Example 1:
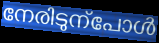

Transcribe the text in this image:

നേരിടുന്പോൾ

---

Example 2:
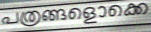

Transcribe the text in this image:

പത്രങ്ങളൊക്കെ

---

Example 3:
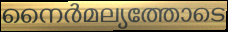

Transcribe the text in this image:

നൈർമല്യത്തോടെ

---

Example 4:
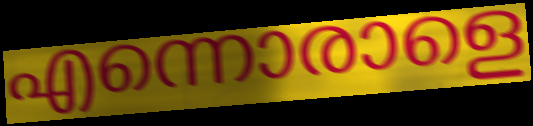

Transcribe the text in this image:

എന്നൊരാളെ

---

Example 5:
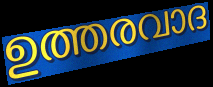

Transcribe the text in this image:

ഉത്തരവാദ